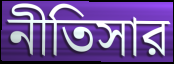
নীতিসার